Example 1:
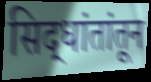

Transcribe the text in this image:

सिद्धांतांतून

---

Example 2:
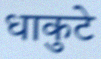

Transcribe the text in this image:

धाकुटे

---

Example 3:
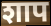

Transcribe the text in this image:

शाप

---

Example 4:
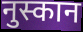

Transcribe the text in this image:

नुस्कान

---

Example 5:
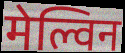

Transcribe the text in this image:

मेल्विन